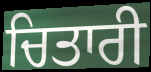
ਚਿਤਾਰੀ